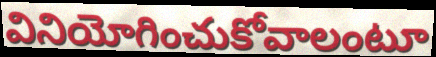
వినియోగించుకోవాలంటూ